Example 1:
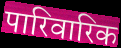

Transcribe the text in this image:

पारिवारिक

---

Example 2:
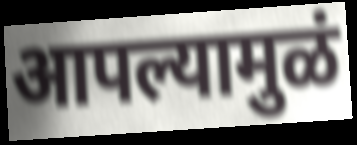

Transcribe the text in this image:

आपल्यामुळं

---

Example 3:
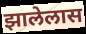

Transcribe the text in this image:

झालेलास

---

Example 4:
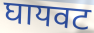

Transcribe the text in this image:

घायवट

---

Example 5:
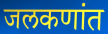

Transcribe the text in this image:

जलकणांत